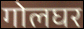
गोलघर